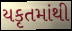
યકૃતમાંથી